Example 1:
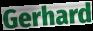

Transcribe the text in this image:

Gerhard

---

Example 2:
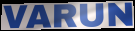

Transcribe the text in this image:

VARUN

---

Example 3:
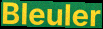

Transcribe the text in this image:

Bleuler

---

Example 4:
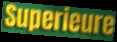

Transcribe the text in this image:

Superieure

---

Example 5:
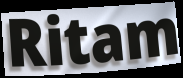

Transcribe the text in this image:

Ritam